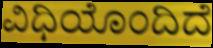
ವಿಧಿಯೊಂದಿದೆ